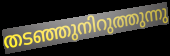
തടഞ്ഞുനിറുത്തുന്നു